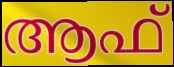
ആഫ്